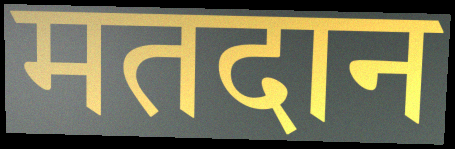
मतदान